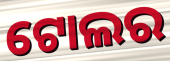
ଟୋଲର